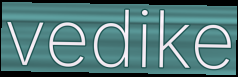
vedike